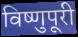
विष्णुपूरी